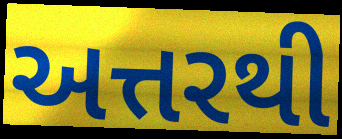
અત્તરથી